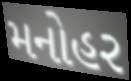
મનોહર